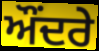
ਔਂਦਰੇ